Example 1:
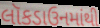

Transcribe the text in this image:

લૉકડાઉનમાંથી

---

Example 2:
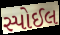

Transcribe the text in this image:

સ્પોઈલ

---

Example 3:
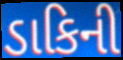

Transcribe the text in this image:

ડાકિની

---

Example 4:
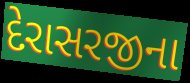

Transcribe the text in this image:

દેરાસરજીના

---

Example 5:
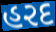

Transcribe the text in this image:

હરદ